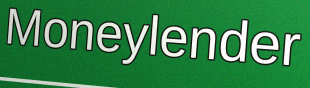
Moneylender